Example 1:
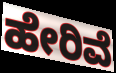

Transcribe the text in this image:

ಹೇರಿವೆ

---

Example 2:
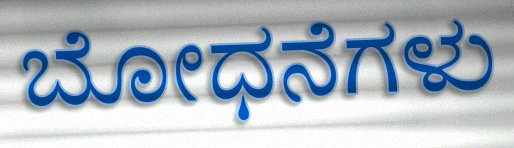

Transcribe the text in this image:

ಬೋಧನೆಗಳು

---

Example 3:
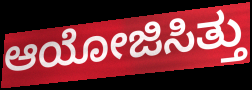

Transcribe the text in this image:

ಆಯೋಜಿಸಿತ್ತು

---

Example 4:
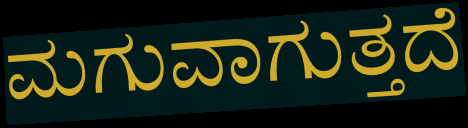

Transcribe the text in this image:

ಮಗುವಾಗುತ್ತದೆ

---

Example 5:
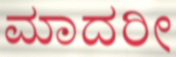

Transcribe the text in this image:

ಮಾದರೀ